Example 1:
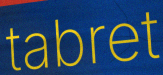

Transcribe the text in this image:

tabret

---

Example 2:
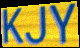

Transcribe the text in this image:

KJY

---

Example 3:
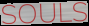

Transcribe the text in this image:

SOULS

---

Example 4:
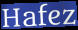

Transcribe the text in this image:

Hafez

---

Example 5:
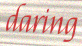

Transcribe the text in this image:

daring